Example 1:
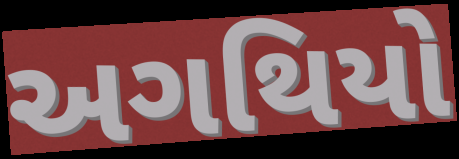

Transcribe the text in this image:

અગથિયો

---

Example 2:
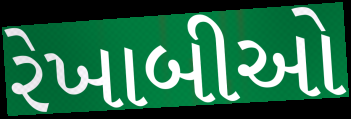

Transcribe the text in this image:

રેખાબીઓ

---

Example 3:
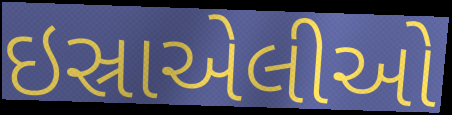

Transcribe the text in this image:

ઇસ્રાએલીઓ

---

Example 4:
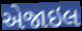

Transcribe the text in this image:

એજાઇલ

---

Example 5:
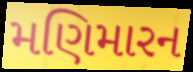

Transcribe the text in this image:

મણિમારન